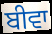
ਬੀਵਾ